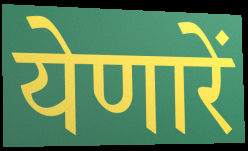
येणारें